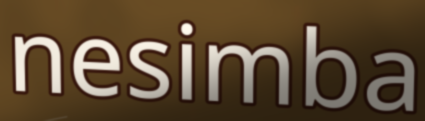
nesimba